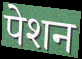
पेशन